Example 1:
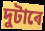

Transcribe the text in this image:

দুটাৰে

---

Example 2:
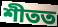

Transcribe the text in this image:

শীতত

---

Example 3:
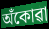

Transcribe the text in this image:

অঁকোৱা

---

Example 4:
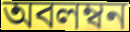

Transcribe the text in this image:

অবলম্বন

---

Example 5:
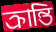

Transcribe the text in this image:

ক্ৰান্তি